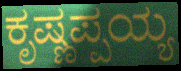
ಕೃಷ್ಣಪ್ಪಯ್ಯ